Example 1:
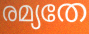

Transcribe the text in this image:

രമ്യതേ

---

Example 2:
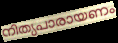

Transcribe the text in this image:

നിത്യപാരായണം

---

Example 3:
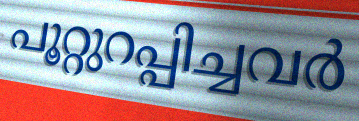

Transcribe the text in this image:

പൂറ്റുറപ്പിച്ചവർ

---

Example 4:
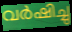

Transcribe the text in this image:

വർഷിച്ചു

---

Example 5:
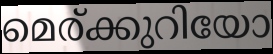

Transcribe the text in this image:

മെര്ക്കുറിയോ